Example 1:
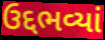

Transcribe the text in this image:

ઉદ્દભવ્યાં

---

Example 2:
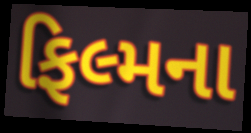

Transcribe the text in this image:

ફિલ્મના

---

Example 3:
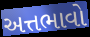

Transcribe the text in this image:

અત્તભાવો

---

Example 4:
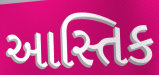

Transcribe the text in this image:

આસ્તિક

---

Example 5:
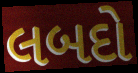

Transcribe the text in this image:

લબદો